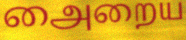
அைறைய